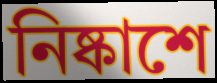
নিষ্কাশে